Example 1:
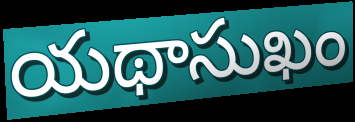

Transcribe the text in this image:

యథాసుఖం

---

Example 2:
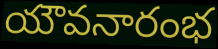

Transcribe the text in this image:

యౌవనారంభ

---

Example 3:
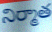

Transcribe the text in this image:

నిర్మాత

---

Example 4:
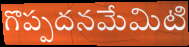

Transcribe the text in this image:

గొప్పదనమేమిటి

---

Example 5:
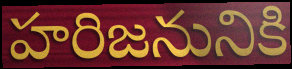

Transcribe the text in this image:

హరిజనునికి